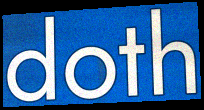
doth